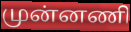
முன்னணி